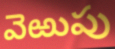
వెఱుపు